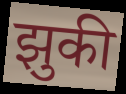
झुकी